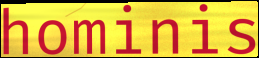
hominis